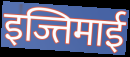
इज्तिमाई